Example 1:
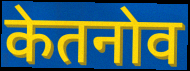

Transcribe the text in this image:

केतनोव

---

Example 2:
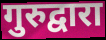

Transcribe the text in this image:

गुरुद्वारा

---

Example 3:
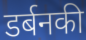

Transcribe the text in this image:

डर्बनकी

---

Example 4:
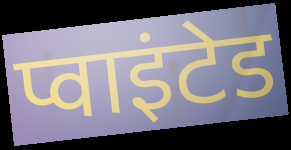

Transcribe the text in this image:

प्वाइंटेड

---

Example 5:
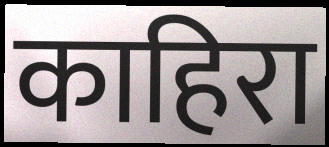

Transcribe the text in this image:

काहिरा